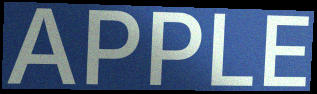
APPLE